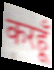
करहूँ